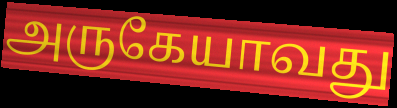
அருகேயாவது